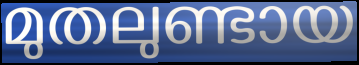
മുതലുണ്ടായ